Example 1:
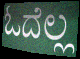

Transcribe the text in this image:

ಓದೆಲ್ಲ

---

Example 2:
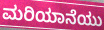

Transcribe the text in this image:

ಮರಿಯಾನೆಯು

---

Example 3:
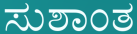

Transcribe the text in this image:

ಸುಶಾಂತ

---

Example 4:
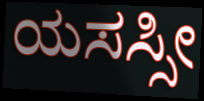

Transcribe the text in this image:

ಯಸಸ್ಸೀ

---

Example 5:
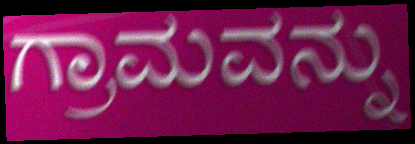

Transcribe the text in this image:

ಗ್ರಾಮವನ್ನು